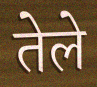
तेले